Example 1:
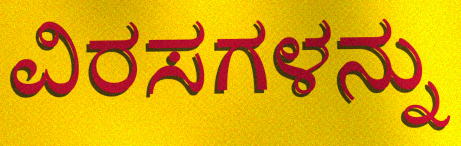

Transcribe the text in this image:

ವಿರಸಗಳನ್ನು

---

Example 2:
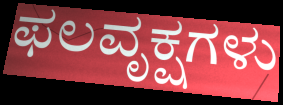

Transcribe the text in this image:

ಫಲವೃಕ್ಷಗಳು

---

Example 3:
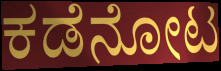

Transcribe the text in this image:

ಕಡೆನೋಟ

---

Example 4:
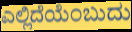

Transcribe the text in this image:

ಎಲ್ಲಿದೆಯೆಂಬುದು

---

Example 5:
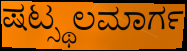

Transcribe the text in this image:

ಷಟ್ಸ್ಥಲಮಾರ್ಗ